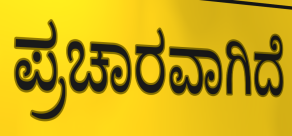
ಪ್ರಚಾರವಾಗಿದೆ